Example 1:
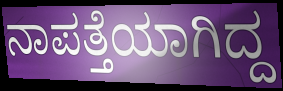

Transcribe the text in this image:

ನಾಪತ್ತೆಯಾಗಿದ್ದ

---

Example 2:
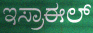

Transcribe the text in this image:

ಇಸ್ರಾಈಲ್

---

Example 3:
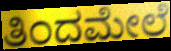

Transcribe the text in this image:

ತಿಂದಮೇಲೆ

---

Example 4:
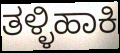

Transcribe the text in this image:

ತಳ್ಳಿಹಾಕಿ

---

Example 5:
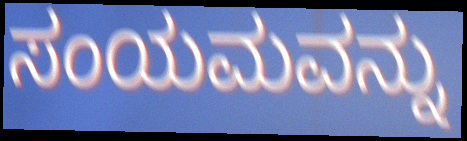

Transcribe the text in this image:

ಸಂಯಮವನ್ನು